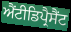
ਐਂਟੀਡਿਪ੍ਰੈਸੈਂਟ